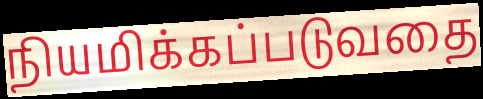
நியமிக்கப்படுவதை